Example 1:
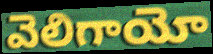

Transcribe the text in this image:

వెలిగాయో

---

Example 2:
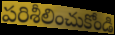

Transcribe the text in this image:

పరిశీలించుకోండి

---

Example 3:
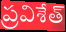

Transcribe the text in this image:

ప్రవిశేత్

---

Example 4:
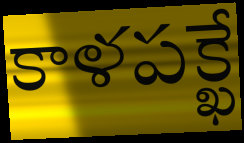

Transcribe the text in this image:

కాళపక్ఖే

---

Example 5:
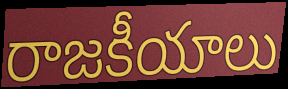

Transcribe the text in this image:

రాజకీయాలు